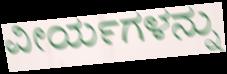
ವೀರ್ಯಗಳನ್ನು